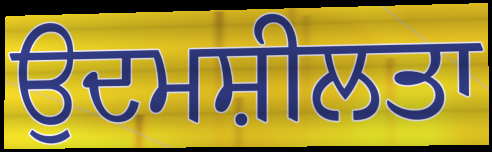
ਉਦਮਸ਼ੀਲਤਾ